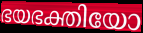
ഭയഭക്തിയോ